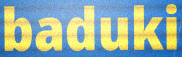
baduki